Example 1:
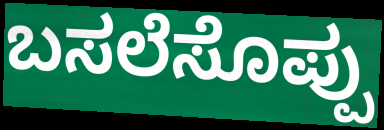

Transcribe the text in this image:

ಬಸಲೆಸೊಪ್ಪು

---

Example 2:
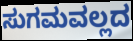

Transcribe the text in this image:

ಸುಗಮವಲ್ಲದ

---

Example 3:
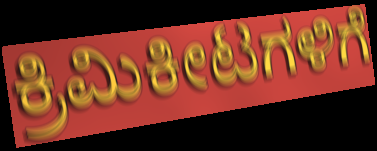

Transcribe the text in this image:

ಕ್ರಿಮಿಕೀಟಗಳಿಗೆ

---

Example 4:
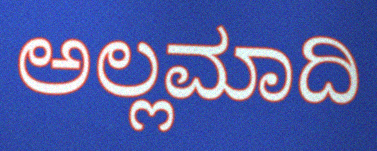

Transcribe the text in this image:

ಅಲ್ಲಮಾದಿ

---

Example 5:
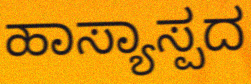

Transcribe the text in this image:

ಹಾಸ್ಯಾಸ್ಪದ